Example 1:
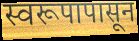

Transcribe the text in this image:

स्वरूपापासून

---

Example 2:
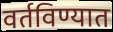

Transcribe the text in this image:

वर्तविण्यात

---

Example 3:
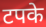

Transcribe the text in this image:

टपके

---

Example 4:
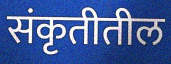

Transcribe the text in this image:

संकृतीतील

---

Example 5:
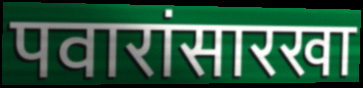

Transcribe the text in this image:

पवारांसारखा